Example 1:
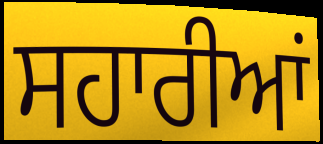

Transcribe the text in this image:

ਸਹਾਰੀਆਂ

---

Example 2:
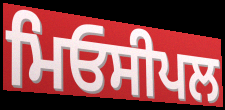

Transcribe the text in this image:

ਮਿਓਸੀਪਲ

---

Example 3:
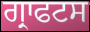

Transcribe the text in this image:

ਗ੍ਰਾਫਟਸ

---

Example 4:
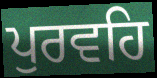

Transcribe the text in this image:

ਪੁਰਵਹਿ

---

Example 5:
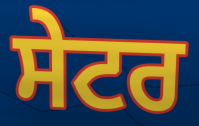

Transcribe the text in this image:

ਸੇਟਰ